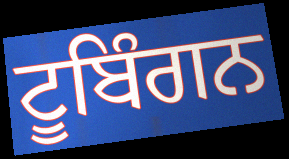
ਟੂਬਿੰਗਨ